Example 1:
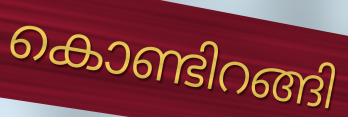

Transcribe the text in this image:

കൊണ്ടിറങ്ങി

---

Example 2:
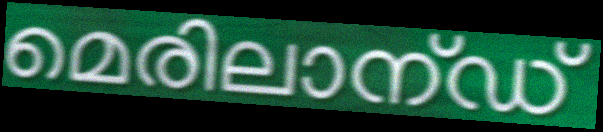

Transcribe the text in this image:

മെരിലാന്ഡ്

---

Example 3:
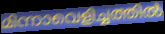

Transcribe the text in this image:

മിന്നാവെളിച്ചത്തിൽ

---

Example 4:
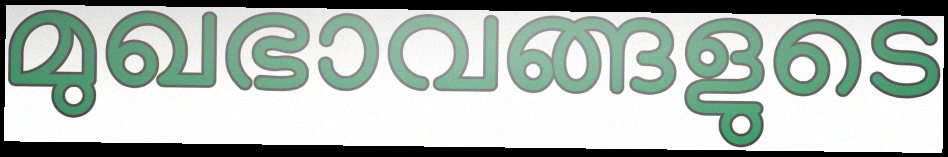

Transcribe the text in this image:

മുഖഭാവങ്ങളുടെ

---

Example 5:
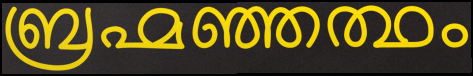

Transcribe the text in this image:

ബ്രഹ്മഞ്ഞത്ഥം